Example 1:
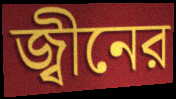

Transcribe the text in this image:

জ্বীনের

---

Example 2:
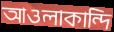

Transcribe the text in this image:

আওলাকান্দি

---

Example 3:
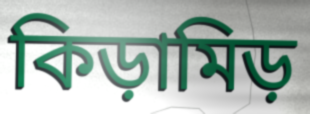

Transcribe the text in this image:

কিড়ামিড়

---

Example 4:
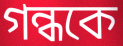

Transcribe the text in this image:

গন্ধকে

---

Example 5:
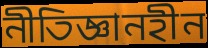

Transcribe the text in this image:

নীতিজ্ঞানহীন